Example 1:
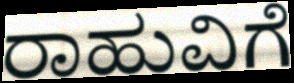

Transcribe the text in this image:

ರಾಹುವಿಗೆ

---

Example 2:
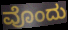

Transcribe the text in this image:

ವೊಂದು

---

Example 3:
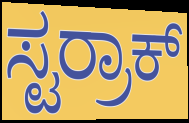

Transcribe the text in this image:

ಸ್ಟರ್ರಾಕ್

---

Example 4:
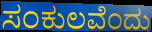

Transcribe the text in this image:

ಸಂಕುಲವೆಂದು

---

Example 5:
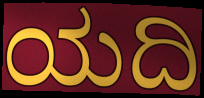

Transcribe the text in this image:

ಯದಿ